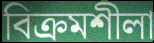
বিক্ৰমশীলা